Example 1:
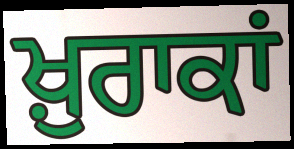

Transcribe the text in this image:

ਖ਼ੁਰਾਕਾਂ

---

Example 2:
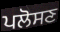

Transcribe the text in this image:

ਪਲੋਸਣ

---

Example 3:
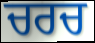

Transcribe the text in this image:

ਚਰਚ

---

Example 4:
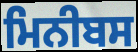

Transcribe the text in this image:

ਮਿਨੀਬਸ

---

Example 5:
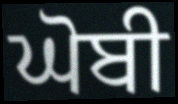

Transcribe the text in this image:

ਘੋਬੀ